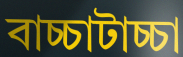
বাচ্চাটাচ্চা